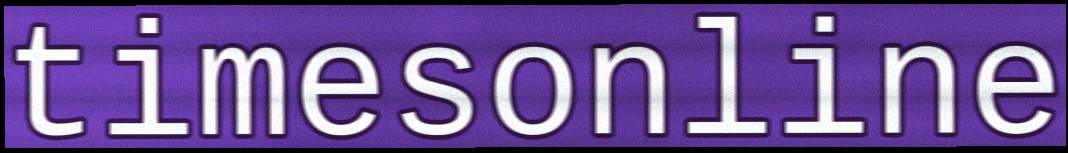
timesonline